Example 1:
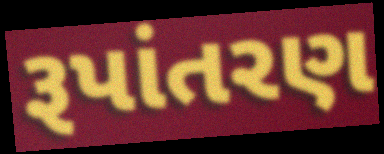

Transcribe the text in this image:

રૂપાંતરણ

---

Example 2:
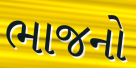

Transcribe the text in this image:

ભાજનો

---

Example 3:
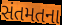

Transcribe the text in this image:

સંતમતના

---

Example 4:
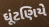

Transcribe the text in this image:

ઘૂંટણિયે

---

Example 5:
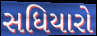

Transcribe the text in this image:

સધિયારો